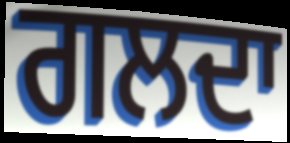
ਗਲਦਾ